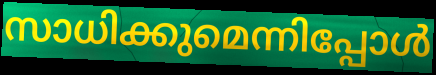
സാധിക്കുമെന്നിപ്പോൾ